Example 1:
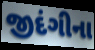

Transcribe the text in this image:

જીદંગીના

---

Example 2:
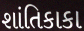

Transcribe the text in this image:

શાંતિકાકા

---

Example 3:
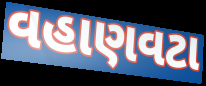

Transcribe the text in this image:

વહાણવટા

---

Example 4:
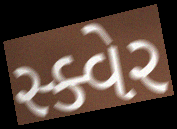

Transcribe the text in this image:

સ્ક્વેર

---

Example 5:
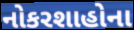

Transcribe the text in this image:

નોકરશાહોના